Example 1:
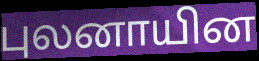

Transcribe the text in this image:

புலனாயின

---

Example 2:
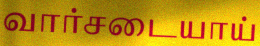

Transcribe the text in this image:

வார்சடையாய்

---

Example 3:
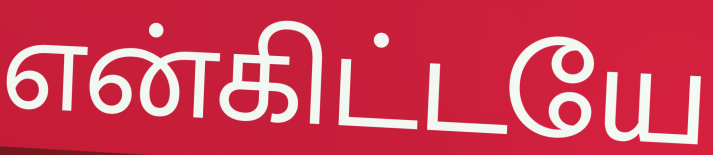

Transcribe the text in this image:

என்கிட்டயே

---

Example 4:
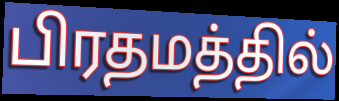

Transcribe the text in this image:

பிரதமத்தில்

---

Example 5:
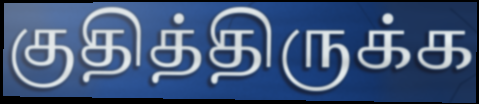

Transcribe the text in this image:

குதித்திருக்க